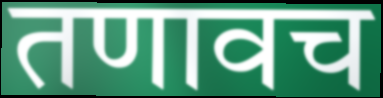
तणावच